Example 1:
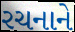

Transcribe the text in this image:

રચનાને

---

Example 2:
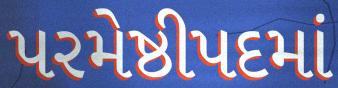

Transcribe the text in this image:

પરમેષ્ઠીપદમાં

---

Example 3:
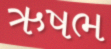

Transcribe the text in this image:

ઋષભ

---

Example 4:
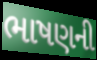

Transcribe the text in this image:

ભાષણની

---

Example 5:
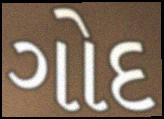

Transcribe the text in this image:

ગોદ